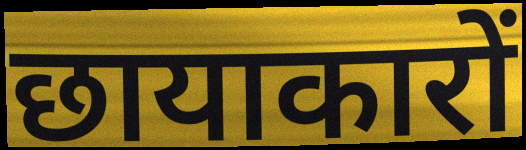
छायाकारों